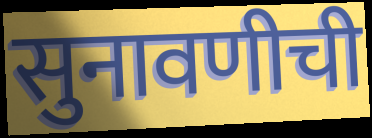
सुनावणीची